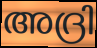
അദ്രി